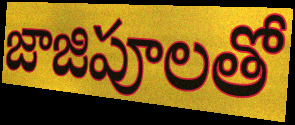
జాజిపూలతో